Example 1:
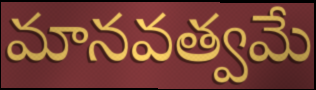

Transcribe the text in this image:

మానవత్వమే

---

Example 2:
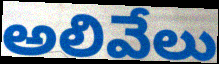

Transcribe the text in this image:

అలివేలు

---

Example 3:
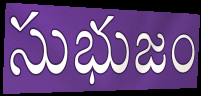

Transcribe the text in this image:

సుభుజం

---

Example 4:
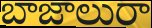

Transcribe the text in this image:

బాజాలురా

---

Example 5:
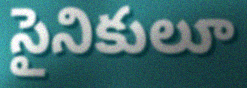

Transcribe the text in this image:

సైనికులూ